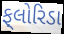
ફ્‌લોરિડા